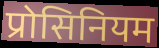
प्रोसिनियम